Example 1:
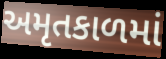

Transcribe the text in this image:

અમૃતકાળમાં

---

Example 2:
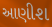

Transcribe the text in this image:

આણીશ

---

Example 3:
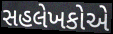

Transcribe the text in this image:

સહલેખકોએ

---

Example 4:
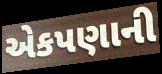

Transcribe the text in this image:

એકપણાની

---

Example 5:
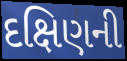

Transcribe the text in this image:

દક્ષિણની